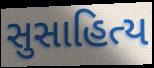
સુસાહિત્ય